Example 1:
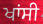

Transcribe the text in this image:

ਖਾਂਸੀ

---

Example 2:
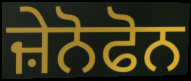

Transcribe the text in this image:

ਜ਼ੇਨੋਫੋਨ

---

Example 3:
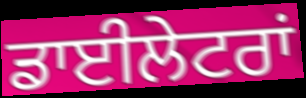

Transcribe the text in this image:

ਡਾਈਲੇਟਰਾਂ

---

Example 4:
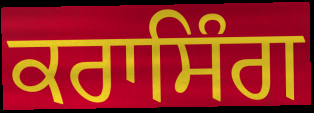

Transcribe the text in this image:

ਕਰਾਸਿੰਗ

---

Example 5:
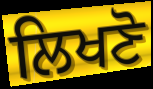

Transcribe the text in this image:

ਲਿਖਣੋ